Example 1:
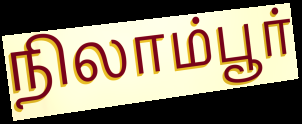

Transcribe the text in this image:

நிலாம்பூர்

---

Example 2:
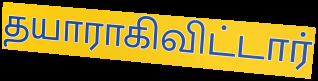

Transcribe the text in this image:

தயாராகிவிட்டார்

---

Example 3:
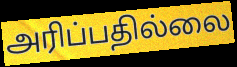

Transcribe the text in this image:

அரிப்பதில்லை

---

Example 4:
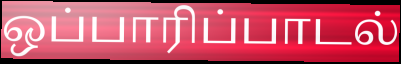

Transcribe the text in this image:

ஒப்பாரிப்பாடல்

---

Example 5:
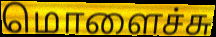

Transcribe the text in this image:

மொளைச்சு